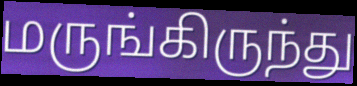
மருங்கிருந்து